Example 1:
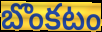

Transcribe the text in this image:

బొంకటం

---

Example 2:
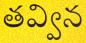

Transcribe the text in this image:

తవ్విన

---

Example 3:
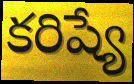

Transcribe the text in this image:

కరిష్యే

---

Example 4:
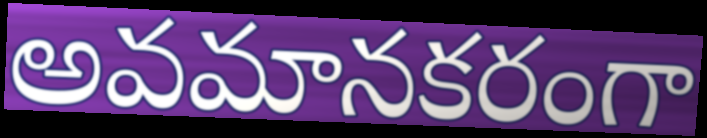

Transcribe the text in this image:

అవమానకరంగా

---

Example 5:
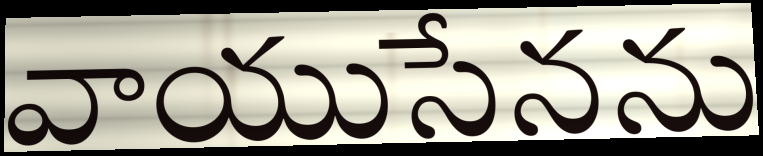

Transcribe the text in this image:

వాయుసేనను